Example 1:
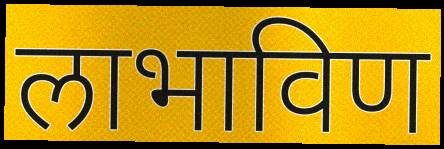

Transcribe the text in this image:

लाभाविण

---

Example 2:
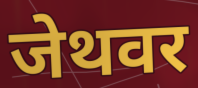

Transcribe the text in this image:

जेथवर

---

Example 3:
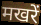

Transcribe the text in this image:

मखरें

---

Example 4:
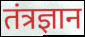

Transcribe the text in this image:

तंत्रज्ञान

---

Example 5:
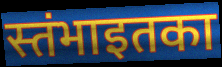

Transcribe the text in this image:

स्तंभाइतका